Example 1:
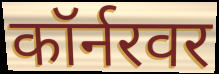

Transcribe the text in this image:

कॉर्नरवर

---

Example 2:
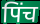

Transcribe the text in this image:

पिंच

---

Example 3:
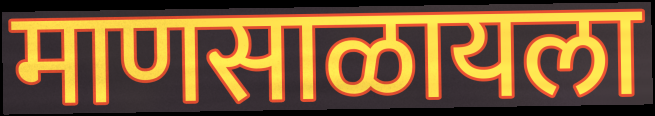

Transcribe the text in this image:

माणसाळायला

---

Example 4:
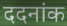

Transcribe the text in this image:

ददनांक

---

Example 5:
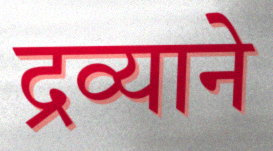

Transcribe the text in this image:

द्रव्याने